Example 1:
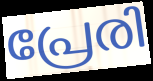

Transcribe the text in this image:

പ്രേരി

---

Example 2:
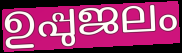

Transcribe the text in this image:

ഉപ്പുജലം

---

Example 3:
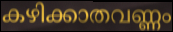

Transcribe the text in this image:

കഴിക്കാതവണ്ണം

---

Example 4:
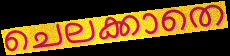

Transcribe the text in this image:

ചെലക്കാതെ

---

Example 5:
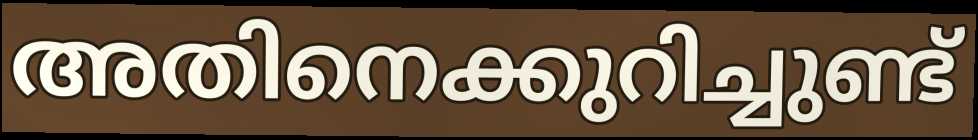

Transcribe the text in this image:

അതിനെക്കുറിച്ചുണ്ട്